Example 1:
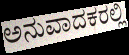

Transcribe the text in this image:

ಅನುವಾದಕರಲ್ಲಿ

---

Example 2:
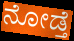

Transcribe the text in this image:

ನೋಡ್ತೆ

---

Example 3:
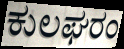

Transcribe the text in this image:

ಕುಲಘರಂ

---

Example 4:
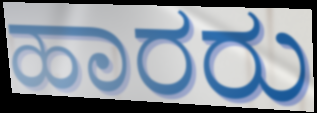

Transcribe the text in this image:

ಹಾರರು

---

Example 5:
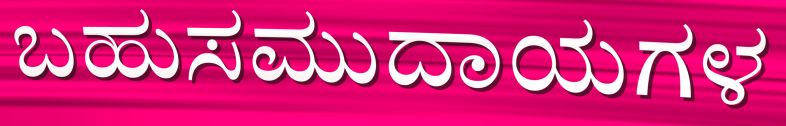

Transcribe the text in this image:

ಬಹುಸಮುದಾಯಗಳ